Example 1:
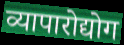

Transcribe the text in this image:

व्यापारोद्योग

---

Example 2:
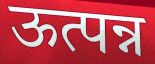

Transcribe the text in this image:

ऊत्पन्न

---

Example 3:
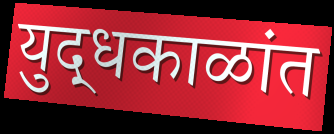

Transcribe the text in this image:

युद्धकाळांत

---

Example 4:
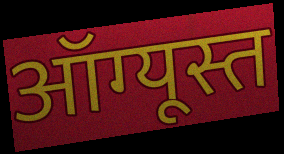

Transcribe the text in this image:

ऑग्यूस्त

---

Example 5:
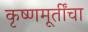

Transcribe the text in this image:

कृष्णमूर्तींचा